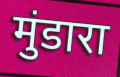
मुंडारा